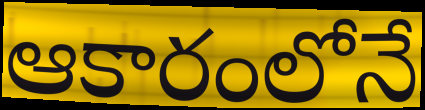
ఆకారంలోనే